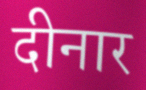
दीनार